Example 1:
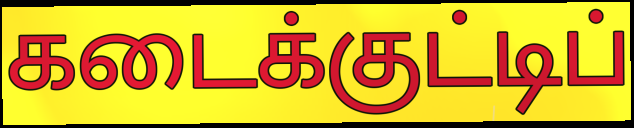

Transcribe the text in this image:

கடைக்குட்டிப்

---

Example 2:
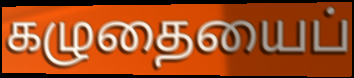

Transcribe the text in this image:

கழுதையைப்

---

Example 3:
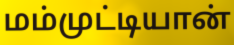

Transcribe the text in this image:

மம்முட்டியான்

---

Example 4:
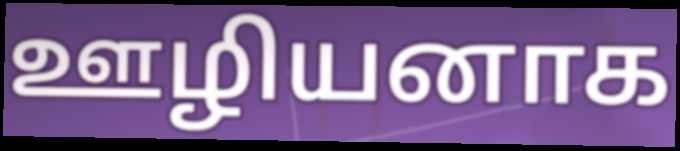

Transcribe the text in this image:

ஊழியனாக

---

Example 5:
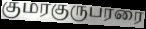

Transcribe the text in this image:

குமரகுருபரரை